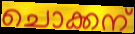
ചൊക്കന്